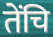
तेंचि